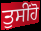
ਤੁਸੀਂਹੋ